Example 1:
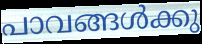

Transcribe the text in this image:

പാവങ്ങൾക്കു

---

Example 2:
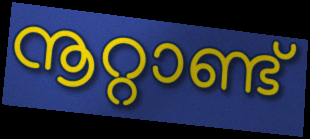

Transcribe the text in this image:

നൂറ്റാണ്ട്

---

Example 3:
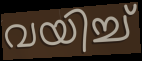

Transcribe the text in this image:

വയിച്ച്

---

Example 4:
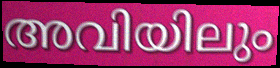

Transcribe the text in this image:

അവിയിലും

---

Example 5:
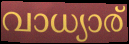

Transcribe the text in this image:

വാധ്യാര്